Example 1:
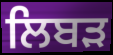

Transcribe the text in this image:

ਲਿਬੜ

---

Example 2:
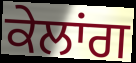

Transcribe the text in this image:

ਕੇਲਾਂਗ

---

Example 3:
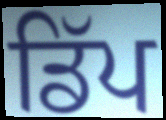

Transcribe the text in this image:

ਡਿੱਪ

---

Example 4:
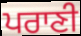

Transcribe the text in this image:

ਪਰਾਣੀ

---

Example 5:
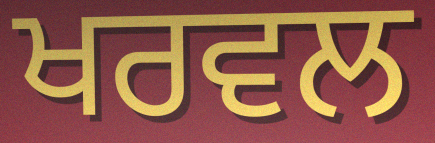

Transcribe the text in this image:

ਖਰਵਲ